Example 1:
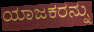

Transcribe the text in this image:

ಯಾಜಕರನ್ನು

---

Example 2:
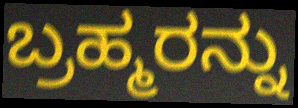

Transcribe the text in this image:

ಬ್ರಹ್ಮರನ್ನು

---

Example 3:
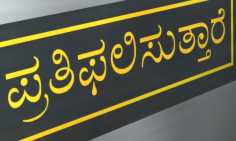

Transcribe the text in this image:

ಪ್ರತಿಫಲಿಸುತ್ತಾರೆ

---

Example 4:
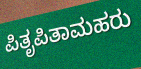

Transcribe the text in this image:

ಪಿತೃಪಿತಾಮಹರು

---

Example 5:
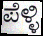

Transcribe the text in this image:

ಪೆಳ್ಳಿ